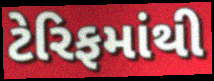
ટેરિફમાંથી